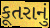
કૂતરાનું